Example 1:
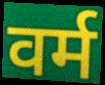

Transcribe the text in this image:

वर्म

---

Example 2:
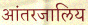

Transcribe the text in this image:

आंतरजालिय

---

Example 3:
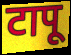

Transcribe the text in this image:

टापू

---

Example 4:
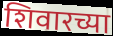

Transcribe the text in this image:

शिवारच्या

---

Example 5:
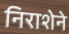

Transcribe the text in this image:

निराशेने